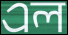
এল